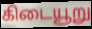
கிடையூறு